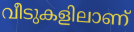
വീടുകളിലാണ്